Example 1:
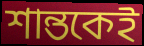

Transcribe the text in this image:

শান্তকেই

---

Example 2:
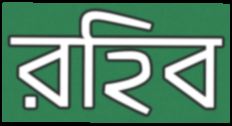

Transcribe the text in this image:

রহিব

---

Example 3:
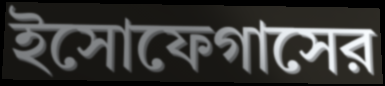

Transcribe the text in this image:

ইসোফেগাসের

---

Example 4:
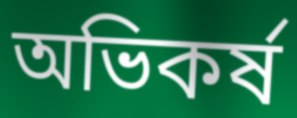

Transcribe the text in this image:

অভিকর্ষ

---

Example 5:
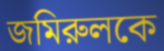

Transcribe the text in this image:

জমিরুলকে